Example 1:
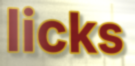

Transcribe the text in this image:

licks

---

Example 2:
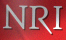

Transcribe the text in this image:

NRI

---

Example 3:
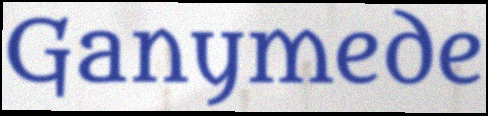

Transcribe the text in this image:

Ganymede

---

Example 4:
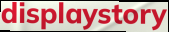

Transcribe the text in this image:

displaystory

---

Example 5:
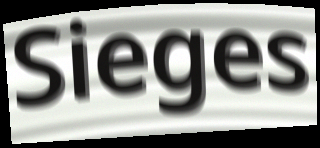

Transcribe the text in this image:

Sieges